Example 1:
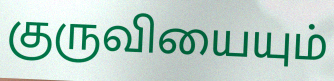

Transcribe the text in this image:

குருவியையும்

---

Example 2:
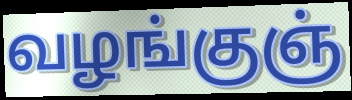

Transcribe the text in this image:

வழங்குஞ்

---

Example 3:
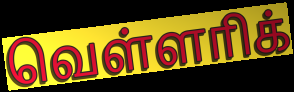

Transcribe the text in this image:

வெள்ளரிக்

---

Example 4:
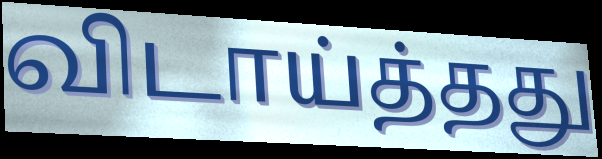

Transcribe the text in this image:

விடாய்த்தது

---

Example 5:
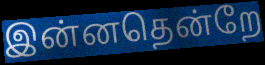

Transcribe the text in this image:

இன்னதென்றே